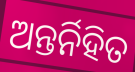
ଅନ୍ତର୍ନିହିତ